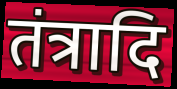
तंत्रादि